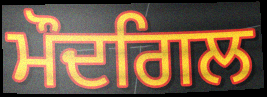
ਮੌਦਗਿਲ